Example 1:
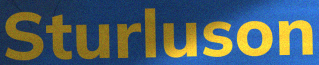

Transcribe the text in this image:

Sturluson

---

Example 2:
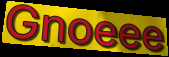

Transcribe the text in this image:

Gnoeee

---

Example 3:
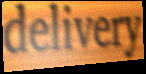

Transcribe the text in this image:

delivery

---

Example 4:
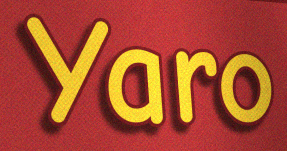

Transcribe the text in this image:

Yaro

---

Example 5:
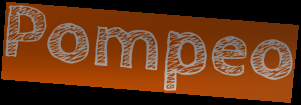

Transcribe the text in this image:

Pompeo